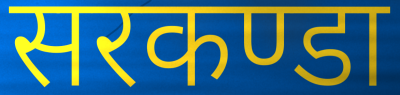
सरकण्डा